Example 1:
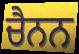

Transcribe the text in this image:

ਚੈਨਨ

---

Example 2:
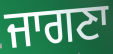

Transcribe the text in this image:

ਜਾਗਣਾ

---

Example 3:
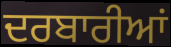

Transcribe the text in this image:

ਦਰਬਾਰੀਆਂ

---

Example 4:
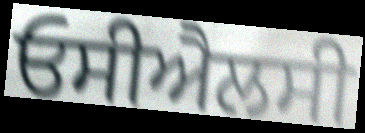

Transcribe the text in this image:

ਓਸੀਐਲਸੀ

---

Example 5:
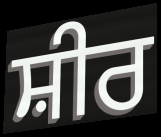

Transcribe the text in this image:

ਸ਼ੀਰ